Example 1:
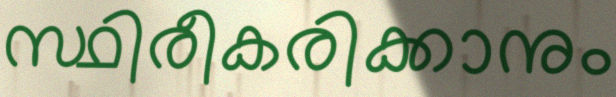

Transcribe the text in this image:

സ്ഥിരീകരിക്കാനും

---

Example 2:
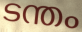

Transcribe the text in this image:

ടന്തം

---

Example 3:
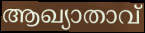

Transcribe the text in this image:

ആഖ്യാതാവ്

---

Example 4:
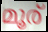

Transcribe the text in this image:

മൂര്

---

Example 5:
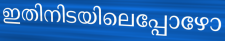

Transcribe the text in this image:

ഇതിനിടയിലെപ്പോഴോ